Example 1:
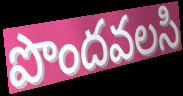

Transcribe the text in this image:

పొందవలసి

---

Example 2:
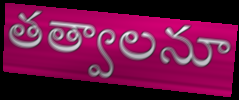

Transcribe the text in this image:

తత్వాలనూ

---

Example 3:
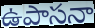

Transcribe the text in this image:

ఉపాసనా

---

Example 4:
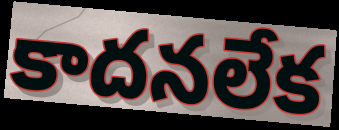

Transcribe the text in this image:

కాదనలేక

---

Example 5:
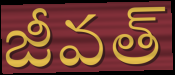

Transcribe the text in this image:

జీవత్